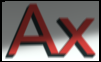
Ax